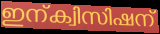
ഇന്ക്വിസിഷന്